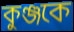
কুঞ্জকে